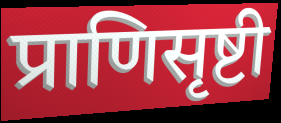
प्राणिसृष्टी